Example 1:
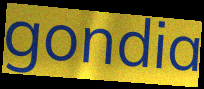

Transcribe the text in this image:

gondia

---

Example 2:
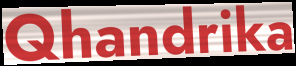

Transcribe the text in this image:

Qhandrika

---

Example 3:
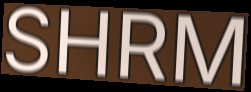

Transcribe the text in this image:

SHRM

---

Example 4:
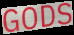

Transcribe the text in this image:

GODS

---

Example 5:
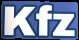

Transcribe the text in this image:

Kfz